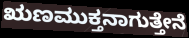
ಋಣಮುಕ್ತನಾಗುತ್ತೇನೆ